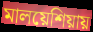
মালয়েশিয়ায়